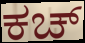
ಕಚ್